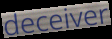
deceiver